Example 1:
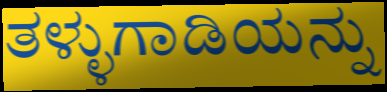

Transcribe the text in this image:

ತಳ್ಳುಗಾಡಿಯನ್ನು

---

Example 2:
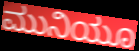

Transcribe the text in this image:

ಮುನಿಯೂ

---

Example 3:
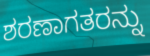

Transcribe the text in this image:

ಶರಣಾಗತರನ್ನು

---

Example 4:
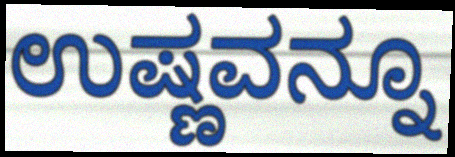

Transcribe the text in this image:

ಉಷ್ಣವನ್ನೂ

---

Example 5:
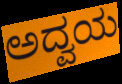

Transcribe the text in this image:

ಅದ್ವಯ